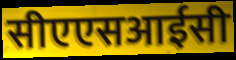
सीएएसआईसी